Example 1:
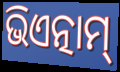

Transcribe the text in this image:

ଭିଏତ୍ନାମ୍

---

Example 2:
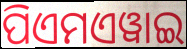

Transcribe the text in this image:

ପିଏମଏୱାଇ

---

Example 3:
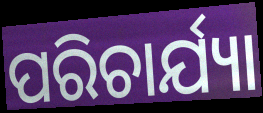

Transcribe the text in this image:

ପରିଚାର୍ଯ୍ୟା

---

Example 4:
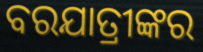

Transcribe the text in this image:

ବରଯାତ୍ରୀଙ୍କର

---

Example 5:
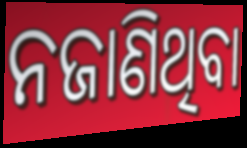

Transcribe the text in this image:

ନଜାଣିଥିବା